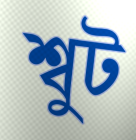
শ্বুট